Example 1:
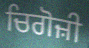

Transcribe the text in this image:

ਚਿਗੋਜ਼ੀ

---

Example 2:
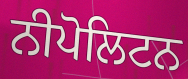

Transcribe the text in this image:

ਨੀਪੋਲਿਟਨ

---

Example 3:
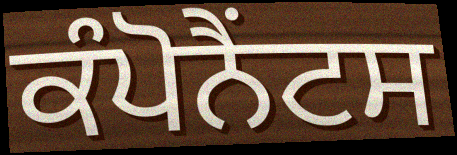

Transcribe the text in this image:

ਕੰਪੋਨੈਂਟਸ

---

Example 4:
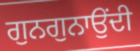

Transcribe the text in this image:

ਗੁਨਗੁਨਾਉਂਦੀ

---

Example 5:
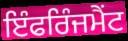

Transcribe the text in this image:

ਇੰਫਰਿੰਜਮੈਂਟ